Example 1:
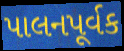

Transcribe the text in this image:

પાલનપૂર્વક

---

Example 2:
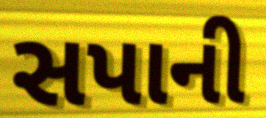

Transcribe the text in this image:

સપાની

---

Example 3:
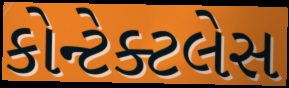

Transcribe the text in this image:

કોન્ટેક્ટલેસ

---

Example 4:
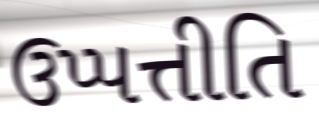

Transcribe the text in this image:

ઉપ્પત્તીતિ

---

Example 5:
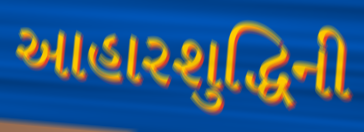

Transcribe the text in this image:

આહારશુદ્ધિની